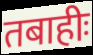
तबाहीः